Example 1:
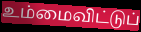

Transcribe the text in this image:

உம்மைவிட்டுப்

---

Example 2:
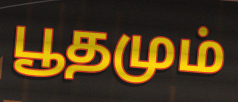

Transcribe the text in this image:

பூதமும்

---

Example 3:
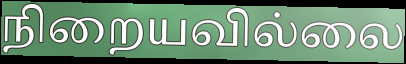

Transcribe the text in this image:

நிறையவில்லை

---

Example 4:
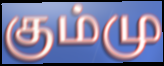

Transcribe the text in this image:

கும்மு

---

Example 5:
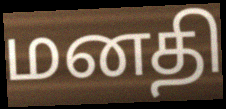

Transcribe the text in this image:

மனதி